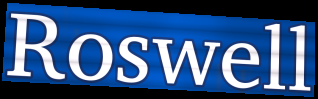
Roswell